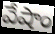
వేషాం